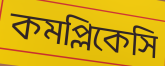
কমপ্লিকেসি